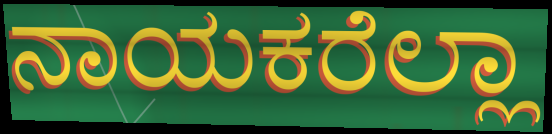
ನಾಯಕರೆಲ್ಲಾ